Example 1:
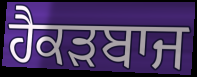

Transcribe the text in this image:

ਹੈਕੜਬਾਜ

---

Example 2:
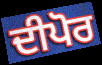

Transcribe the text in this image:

ਦੀਪੋਰ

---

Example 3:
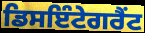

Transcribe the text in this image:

ਡਿਸਇੰਟੇਗਰੈਂਟ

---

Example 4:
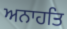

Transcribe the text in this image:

ਅਨਾਹਤਿ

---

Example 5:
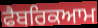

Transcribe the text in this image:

ਫੈਬਰਿਕਆਮ